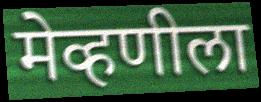
मेव्हणीला